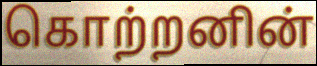
கொற்றனின்